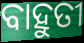
ବାହୁତୀ